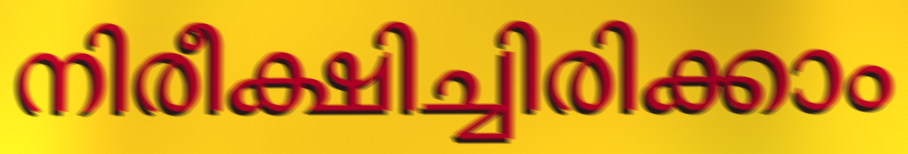
നിരീക്ഷിച്ചിരിക്കാം